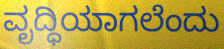
ವೃದ್ಧಿಯಾಗಲೆಂದು